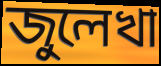
জুলেখা